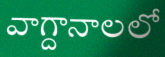
వాగ్దానాలలో